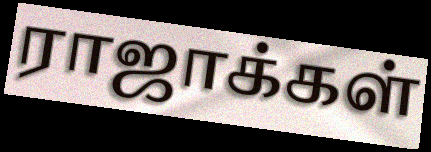
ராஜாக்கள்